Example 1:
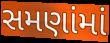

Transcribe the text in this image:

સમણાંમાં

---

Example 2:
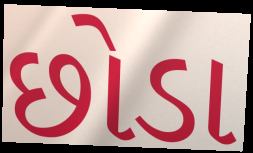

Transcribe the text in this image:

છોડા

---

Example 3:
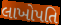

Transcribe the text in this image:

લાખોપતિ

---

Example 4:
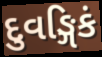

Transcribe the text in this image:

દુવઙ્ગિકં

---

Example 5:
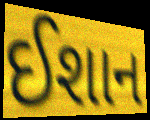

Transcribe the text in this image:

ઈશાન